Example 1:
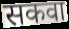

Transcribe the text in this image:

सकवा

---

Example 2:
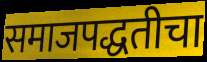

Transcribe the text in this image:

समाजपद्धतीचा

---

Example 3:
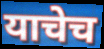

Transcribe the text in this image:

याचेच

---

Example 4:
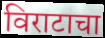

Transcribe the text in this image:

विराटाचा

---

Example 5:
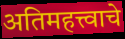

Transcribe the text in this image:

अतिमहत्त्वाचे